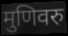
मुणिवरु